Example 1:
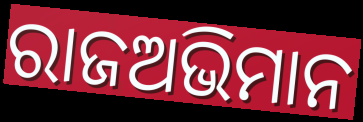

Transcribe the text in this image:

ରାଜଅଭିମାନ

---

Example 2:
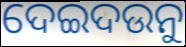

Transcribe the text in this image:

ଦେଇଦଉନୁ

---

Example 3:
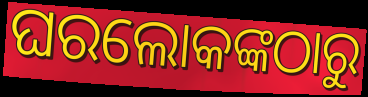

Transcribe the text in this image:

ଘରଲୋକଙ୍କଠାରୁ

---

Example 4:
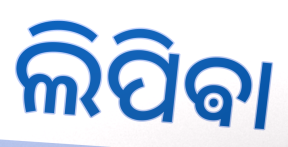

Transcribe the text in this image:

ଲିପିଵା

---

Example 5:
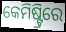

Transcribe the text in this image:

କେମିଷ୍ଟ୍ରିରେ